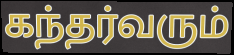
கந்தர்வரும்